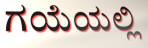
ಗಯೆಯಲ್ಲಿ